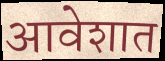
आवेशात